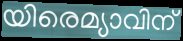
യിരെമ്യാവിന്